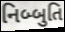
નિબ્બુતિ